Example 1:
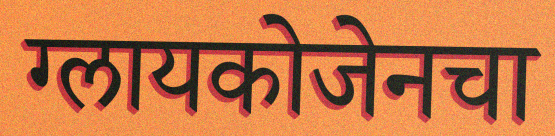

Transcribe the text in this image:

ग्लायकोजेनचा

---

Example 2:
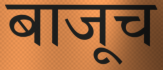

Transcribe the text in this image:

बाजूच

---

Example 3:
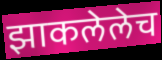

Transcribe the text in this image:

झाकलेलेच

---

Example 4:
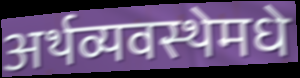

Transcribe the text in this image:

अर्थव्यवस्थेमधे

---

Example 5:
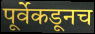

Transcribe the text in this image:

पूर्वेकडूनच